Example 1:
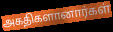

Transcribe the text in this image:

அகதிகளானார்கள்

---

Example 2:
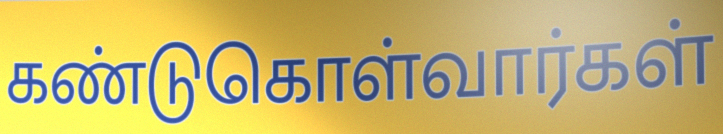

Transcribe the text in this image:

கண்டுகொள்வார்கள்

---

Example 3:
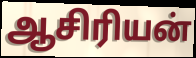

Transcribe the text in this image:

ஆசிரியன்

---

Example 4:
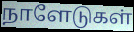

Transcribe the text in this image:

நாளேடுகள்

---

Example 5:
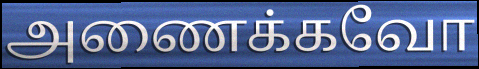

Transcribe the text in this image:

அணைக்கவோ